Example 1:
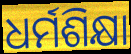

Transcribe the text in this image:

ଧର୍ମଶିକ୍ଷା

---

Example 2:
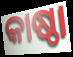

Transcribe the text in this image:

କାଷ୍ଠା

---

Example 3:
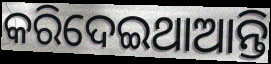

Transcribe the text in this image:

କରିଦେଇଥାଆନ୍ତି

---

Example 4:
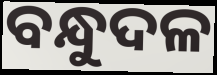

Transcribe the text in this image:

ବନ୍ଧୁଦଳ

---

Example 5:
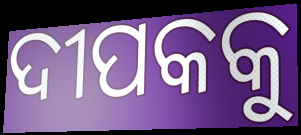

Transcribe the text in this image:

ଦୀପକକୁ